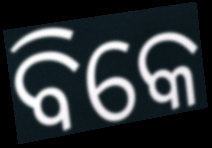
ବିକେ